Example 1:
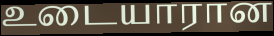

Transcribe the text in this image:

உடையாரான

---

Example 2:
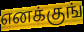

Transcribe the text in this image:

எனக்குங்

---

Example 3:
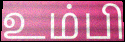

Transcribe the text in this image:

உம்பி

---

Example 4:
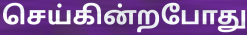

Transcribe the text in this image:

செய்கின்றபோது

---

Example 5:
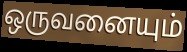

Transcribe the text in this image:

ஒருவனையும்